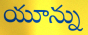
యూన్ను